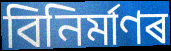
বিনিৰ্মাণৰ